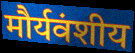
मौर्यवंशीय